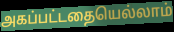
அகப்பட்டதையெல்லாம்